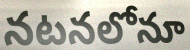
నటనలోనూ